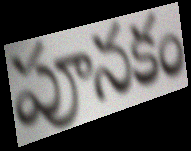
పూనకం